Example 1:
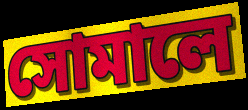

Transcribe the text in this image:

সোমালে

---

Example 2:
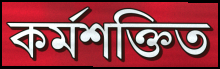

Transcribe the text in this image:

কৰ্মশক্তিত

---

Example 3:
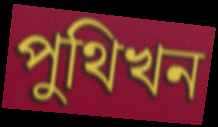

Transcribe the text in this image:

পুথিখন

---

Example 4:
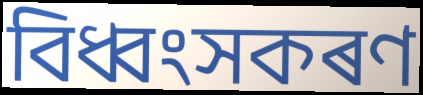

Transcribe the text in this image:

বিধ্বংসকৰণ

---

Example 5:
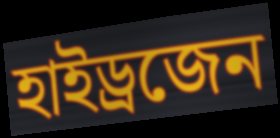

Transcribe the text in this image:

হাইড্ৰজেন